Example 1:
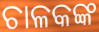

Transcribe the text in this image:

ଚାଳକଙ୍କ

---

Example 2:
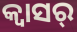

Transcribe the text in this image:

କ୍ୱାସର୍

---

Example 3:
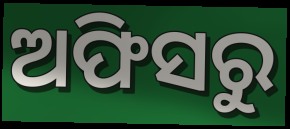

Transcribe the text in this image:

ଅଫିସରୁ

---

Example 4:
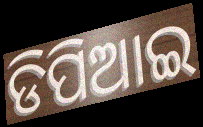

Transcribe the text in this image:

ଡିପିଆଇ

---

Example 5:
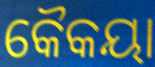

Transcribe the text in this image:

କୈକୟା